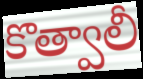
కొత్వాలీ